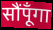
सौंपूँगा